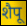
शैपू